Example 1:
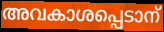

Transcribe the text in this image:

അവകാശപ്പെടാന്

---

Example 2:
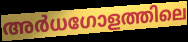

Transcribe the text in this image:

അർധഗോളത്തിലെ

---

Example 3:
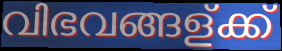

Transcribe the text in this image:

വിഭവങ്ങള്ക്ക്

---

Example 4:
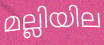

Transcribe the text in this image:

മല്ലിയില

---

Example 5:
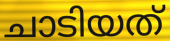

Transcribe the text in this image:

ചാടിയത്